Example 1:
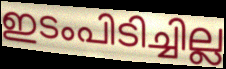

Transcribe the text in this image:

ഇടംപിടിച്ചില്ല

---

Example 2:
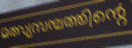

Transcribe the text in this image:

മത്സ്യസമ്പത്തിന്റെ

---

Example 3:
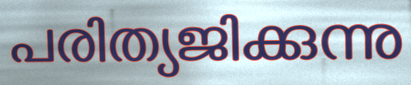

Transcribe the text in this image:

പരിത്യജിക്കുന്നു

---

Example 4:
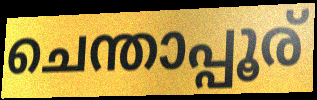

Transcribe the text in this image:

ചെന്താപ്പൂര്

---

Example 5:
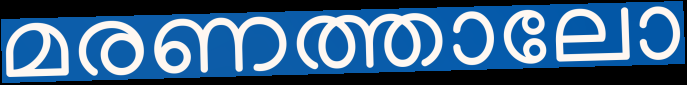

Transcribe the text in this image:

മരണത്താലോ